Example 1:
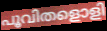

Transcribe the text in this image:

പൂവിതളൊളി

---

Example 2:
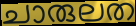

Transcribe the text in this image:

ചാരുലത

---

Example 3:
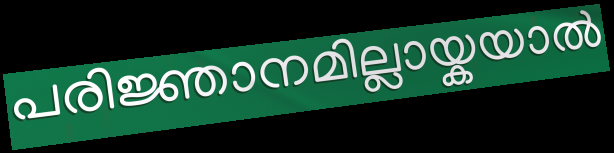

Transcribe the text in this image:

പരിജ്ഞാനമില്ലായ്കയാൽ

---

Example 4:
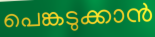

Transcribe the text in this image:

പെങ്കടുക്കാൻ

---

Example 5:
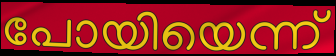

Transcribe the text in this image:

പോയിയെന്ന്